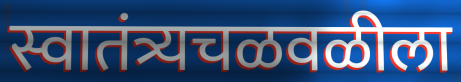
स्वातंत्र्यचळवळीला